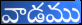
వాడము